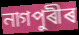
নাগপুৰীৰ